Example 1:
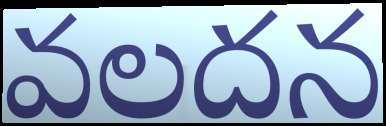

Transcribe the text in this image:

వలదన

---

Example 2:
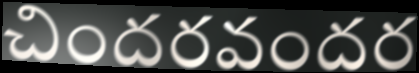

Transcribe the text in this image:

చిందరవందర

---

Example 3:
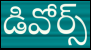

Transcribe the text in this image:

డివోర్స్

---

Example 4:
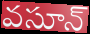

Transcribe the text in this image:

వసూన్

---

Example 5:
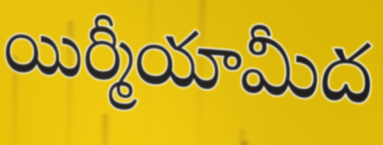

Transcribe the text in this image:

యిర్మీయామీద